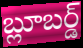
బ్లూబర్డ్